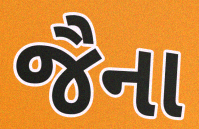
જૈના